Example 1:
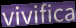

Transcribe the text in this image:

vivifica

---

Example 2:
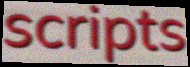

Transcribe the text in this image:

scripts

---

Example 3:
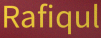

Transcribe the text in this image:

Rafiqul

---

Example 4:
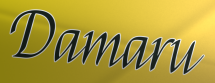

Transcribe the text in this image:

Damaru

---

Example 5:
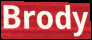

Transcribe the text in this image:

Brody